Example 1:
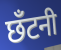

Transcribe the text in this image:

छँटनी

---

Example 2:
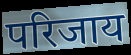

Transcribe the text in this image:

परिजाय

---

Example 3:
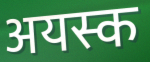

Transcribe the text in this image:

अयस्क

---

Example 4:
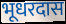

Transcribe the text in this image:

भूधरदास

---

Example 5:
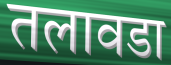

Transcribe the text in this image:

तलावडा